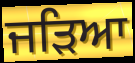
ਜੜਿਆ